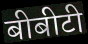
बीबीटी